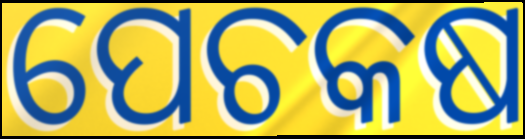
ପେଚକଷ